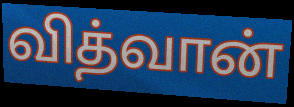
வித்வான்